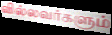
வில்லவர்களும்